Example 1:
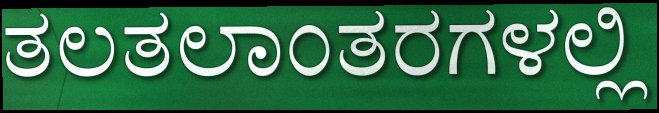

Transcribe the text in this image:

ತಲತಲಾಂತರಗಳಲ್ಲಿ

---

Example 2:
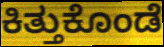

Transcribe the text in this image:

ಕಿತ್ತುಕೊಂಡೆ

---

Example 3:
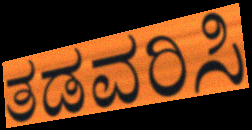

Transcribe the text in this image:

ತಡವರಿಸಿ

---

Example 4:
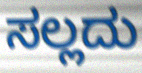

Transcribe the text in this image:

ಸಲ್ಲದು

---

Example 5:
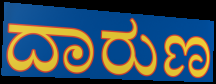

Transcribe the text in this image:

ದಾರುಣ